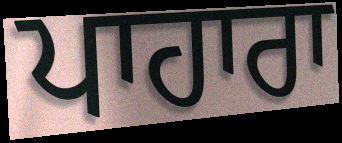
ਪਾਹਾਰਾ